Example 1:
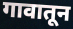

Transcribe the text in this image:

गावातून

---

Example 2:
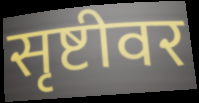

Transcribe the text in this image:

सृष्टीवर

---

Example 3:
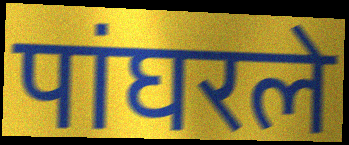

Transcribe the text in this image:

पांघरले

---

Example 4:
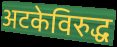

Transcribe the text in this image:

अटकेविरुद्ध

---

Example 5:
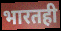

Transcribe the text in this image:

भारतही